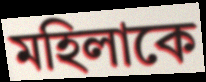
মহিলাকে